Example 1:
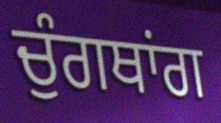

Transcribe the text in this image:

ਚੁੰਗਥਾਂਗ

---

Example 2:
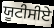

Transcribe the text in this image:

ਯੂਟੀਸੀਏ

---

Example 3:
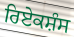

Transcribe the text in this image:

ਰਿਏਕਸ਼ੰਸ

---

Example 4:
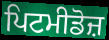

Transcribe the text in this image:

ਪਿਟਮੀਡੋਜ਼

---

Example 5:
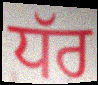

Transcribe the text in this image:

ਧੱਰ